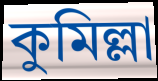
কুমিল্লা